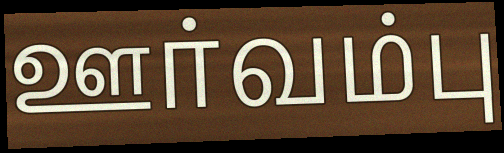
ஊர்வம்பு